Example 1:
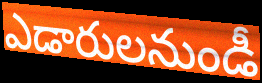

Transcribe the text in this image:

ఎడారులనుండీ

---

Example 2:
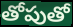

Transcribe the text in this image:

తోపుతో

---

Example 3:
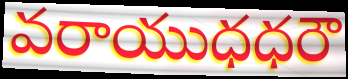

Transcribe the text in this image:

వరాయుధధరౌ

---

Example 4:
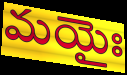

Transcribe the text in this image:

మయైః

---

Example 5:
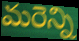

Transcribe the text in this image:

మరెన్ని